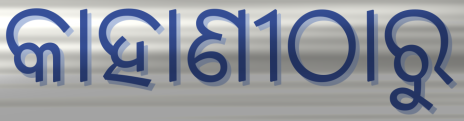
କାହାଣୀଠାରୁ